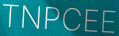
TNPCEE